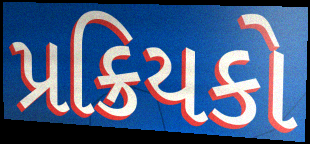
પ્રક્રિયકો